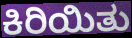
ಕಿರಿಯಿತು